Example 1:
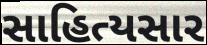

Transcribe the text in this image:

સાહિત્યસાર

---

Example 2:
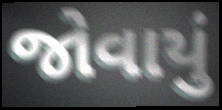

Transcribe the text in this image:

જોવાયું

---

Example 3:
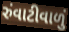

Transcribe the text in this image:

રુંવાટીવાળું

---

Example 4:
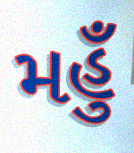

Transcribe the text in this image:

મહુઁ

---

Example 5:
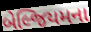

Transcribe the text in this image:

બેલ્જિયમના